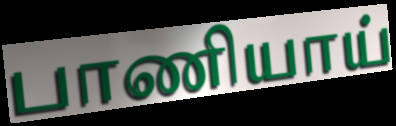
பாணியாய்